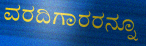
ವರದಿಗಾರರನ್ನೂ